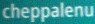
cheppalenu